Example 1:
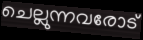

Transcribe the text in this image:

ചെല്ലുന്നവരോട്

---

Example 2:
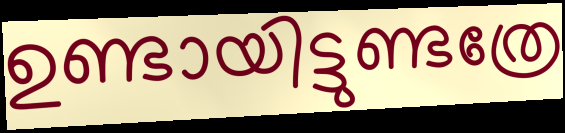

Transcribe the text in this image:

ഉണ്ടായിട്ടുണ്ടത്രേ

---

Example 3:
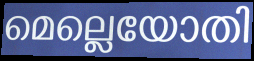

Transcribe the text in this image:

മെല്ലെയോതി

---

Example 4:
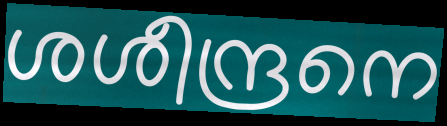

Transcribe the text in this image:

ശശീന്ദ്രനെ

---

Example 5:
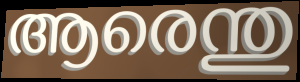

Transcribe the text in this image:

ആരെന്തു